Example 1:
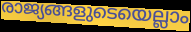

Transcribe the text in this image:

രാജ്യങ്ങളുടെയെല്ലാം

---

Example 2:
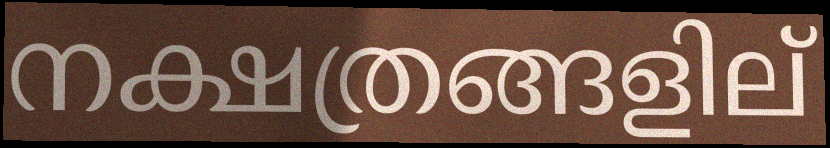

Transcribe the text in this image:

നക്ഷത്രങ്ങളില്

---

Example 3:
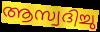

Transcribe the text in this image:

ആസ്വദിച്ചു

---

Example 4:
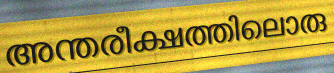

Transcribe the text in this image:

അന്തരീക്ഷത്തിലൊരു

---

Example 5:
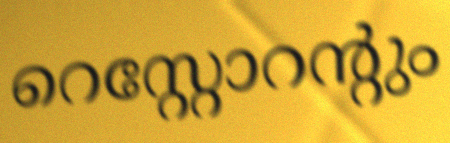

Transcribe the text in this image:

റെസ്റ്റോറന്റും